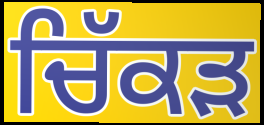
ਚਿੱਕੜ